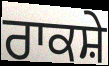
ਰਾਕਸ਼ੇ